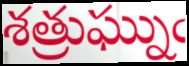
శత్రుఘ్నుఁ